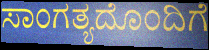
ಸಾಂಗತ್ಯದೊಂದಿಗೆ